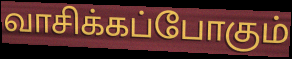
வாசிக்கப்போகும்